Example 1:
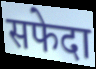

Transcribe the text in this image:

सफेदा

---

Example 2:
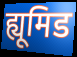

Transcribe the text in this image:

ह्यूमिड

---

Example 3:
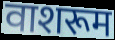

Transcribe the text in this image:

वाशरूम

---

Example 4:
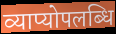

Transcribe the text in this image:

व्याप्योपलब्धि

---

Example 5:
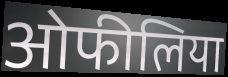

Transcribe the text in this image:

ओफीलिया